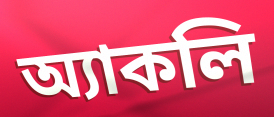
অ্যাকলি